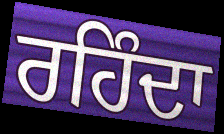
ਰਹਿੰਦਾ